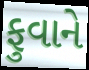
ફુવાને